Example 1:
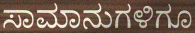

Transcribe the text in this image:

ಸಾಮಾನುಗಳಿಗೂ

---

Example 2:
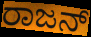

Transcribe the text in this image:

ರಾಜನ್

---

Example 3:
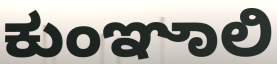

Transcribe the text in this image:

ಕುಂಞಾಲಿ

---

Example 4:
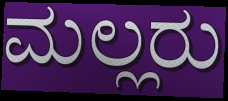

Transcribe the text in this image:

ಮಲ್ಲರು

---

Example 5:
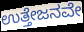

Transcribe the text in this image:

ಉತ್ತೇಜನವೇ